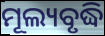
ମୂଲ୍ୟବୃଦ୍ଧି